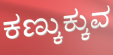
ಕಣ್ಕುಕ್ಕುವ